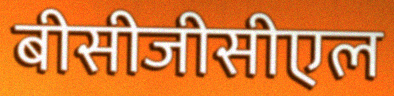
बीसीजीसीएल